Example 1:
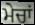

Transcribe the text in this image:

ਮੇਚਾਂ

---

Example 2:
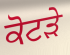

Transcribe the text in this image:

ਕੋਟੜੇ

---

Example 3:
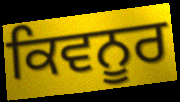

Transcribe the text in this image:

ਕਿਵਨੂਰ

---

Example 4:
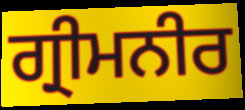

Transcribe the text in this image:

ਗ੍ਰੀਮਨੀਰ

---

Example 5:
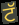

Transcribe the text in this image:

ਟੱ